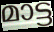
മാട്ട